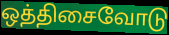
ஒத்திசைவோடு